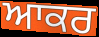
ਆਕਰ